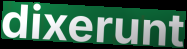
dixerunt